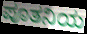
ಪೂತನಿಯ